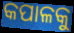
କପାଳକୁ